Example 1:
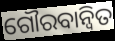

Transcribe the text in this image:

ଗୌରବାନ୍ୱିତ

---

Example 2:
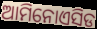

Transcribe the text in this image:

ଆମିନୋଏସିଡ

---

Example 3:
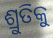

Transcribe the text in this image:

ଶ୍ରୁତିକୁ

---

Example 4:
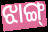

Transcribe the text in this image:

ଝାଙ୍ଗ୍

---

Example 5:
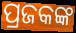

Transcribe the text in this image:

ପ୍ରଜକଙ୍କ